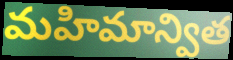
మహిమాన్విత